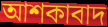
আশকাবাদ